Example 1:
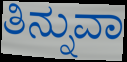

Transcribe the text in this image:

ತಿನ್ನುವಾ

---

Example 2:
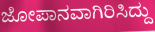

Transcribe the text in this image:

ಜೋಪಾನವಾಗಿರಿಸಿದ್ದು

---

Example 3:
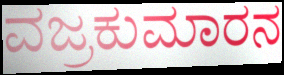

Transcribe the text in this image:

ವಜ್ರಕುಮಾರನ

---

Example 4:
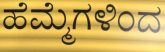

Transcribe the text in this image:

ಹೆಮ್ಮೆಗಳಿಂದ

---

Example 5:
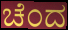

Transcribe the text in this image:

ಚೆಂದ